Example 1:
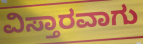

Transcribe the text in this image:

ವಿಸ್ತಾರವಾಗು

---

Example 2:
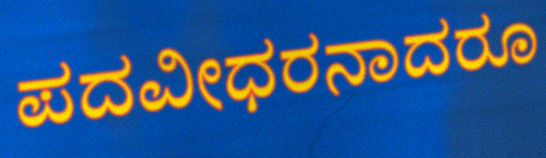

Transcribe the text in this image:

ಪದವೀಧರನಾದರೂ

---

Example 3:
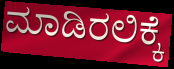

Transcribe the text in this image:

ಮಾಡಿರಲಿಕ್ಕೆ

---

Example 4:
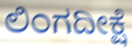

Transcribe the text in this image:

ಲಿಂಗದೀಕ್ಷೆ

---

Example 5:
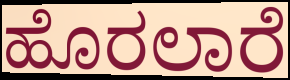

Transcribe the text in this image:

ಹೊರಲಾರೆ